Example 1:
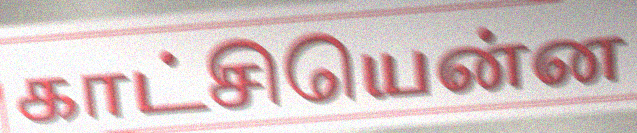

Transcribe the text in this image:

காட்சியென்ன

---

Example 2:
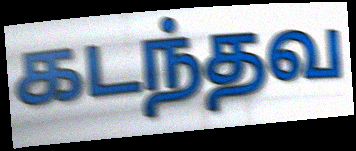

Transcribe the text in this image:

கடந்தவ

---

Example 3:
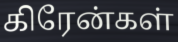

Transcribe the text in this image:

கிரேன்கள்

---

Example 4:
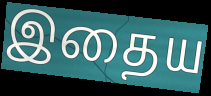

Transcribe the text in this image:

இதைய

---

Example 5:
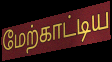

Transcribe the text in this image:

மேற்காட்டிய